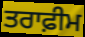
ਤਰਾਫ਼ੀਮ